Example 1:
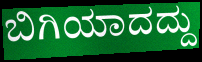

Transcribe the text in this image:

ಬಿಗಿಯಾದದ್ದು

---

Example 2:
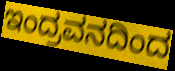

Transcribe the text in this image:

ಇಂದ್ರವನದಿಂದ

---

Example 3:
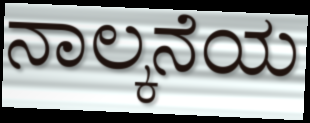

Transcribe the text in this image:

ನಾಲ್ಕನೆಯ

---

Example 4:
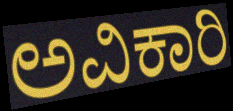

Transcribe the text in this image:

ಅವಿಕಾರಿ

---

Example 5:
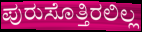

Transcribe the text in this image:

ಪುರುಸೊತ್ತಿರಲಿಲ್ಲ